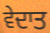
ਵੇਦਾਤ